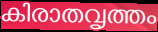
കിരാതവൃത്തം